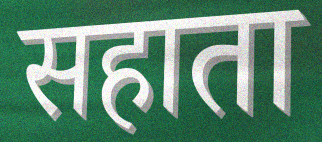
सहाता